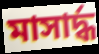
মাসার্দ্ধ